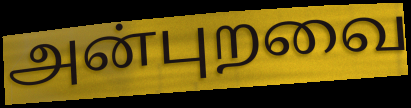
அன்புறவை